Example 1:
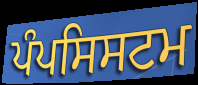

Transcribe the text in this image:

ਪੰਪਸਿਸਟਮ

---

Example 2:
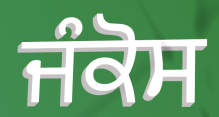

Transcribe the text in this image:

ਜੰਕੋਸ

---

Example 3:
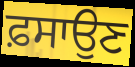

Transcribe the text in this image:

ਫ਼ਸਾਉਣ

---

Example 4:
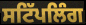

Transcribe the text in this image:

ਸਟਿੱਪਲਿੰਗ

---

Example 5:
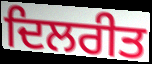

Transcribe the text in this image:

ਦਿਲਰੀਤ